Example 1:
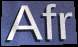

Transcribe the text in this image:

Afr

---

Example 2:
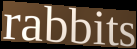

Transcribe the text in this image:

rabbits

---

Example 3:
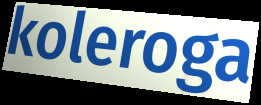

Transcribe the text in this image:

koleroga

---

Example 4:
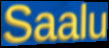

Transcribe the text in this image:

Saalu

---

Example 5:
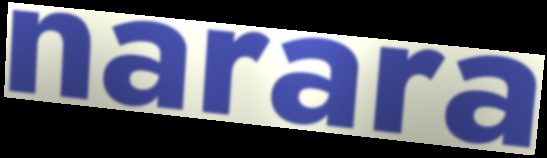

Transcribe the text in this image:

narara